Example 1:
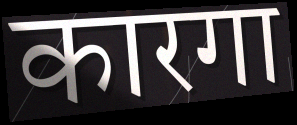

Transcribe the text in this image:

कारगा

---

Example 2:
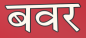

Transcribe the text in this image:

बवर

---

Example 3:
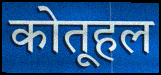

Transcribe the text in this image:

कोतूहल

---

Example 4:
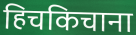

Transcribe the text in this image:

हिचकिचाना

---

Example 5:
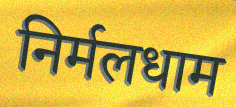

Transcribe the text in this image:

निर्मलधाम